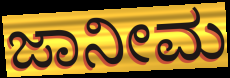
ಜಾನೀಮ